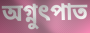
অগ্নুৎপাত